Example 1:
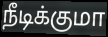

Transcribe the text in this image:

நீடிக்குமா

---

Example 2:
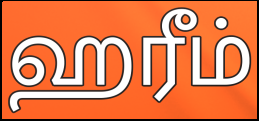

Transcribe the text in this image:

ஹரீம்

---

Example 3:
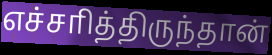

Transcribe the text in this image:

எச்சரித்திருந்தான்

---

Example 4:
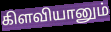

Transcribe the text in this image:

கிளவியானும்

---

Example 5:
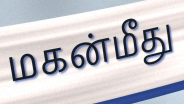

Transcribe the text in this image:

மகன்மீது